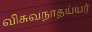
விசுவநாதய்யர்